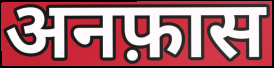
अनफ़ास